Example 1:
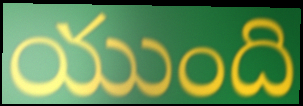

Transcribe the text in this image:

యుంది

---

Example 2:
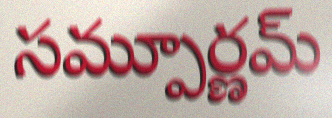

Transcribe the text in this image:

సమ్పూర్ణమ్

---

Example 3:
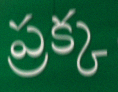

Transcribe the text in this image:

ప్రక్క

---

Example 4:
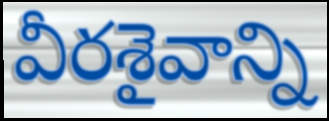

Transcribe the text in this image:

వీరశైవాన్ని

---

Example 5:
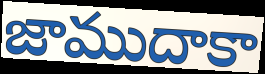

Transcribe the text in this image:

జాముదాకా